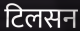
टिलसन